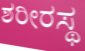
ಶರೀರಸ್ಥ